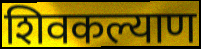
शिवकल्याण